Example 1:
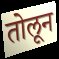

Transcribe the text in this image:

तोलून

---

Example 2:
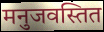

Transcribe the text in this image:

मनुजवस्तित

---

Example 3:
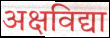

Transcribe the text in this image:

अक्षविद्या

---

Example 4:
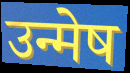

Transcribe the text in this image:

उन्मेष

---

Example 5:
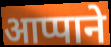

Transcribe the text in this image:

आप्पाने